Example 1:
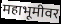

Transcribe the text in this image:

महाभूमीवर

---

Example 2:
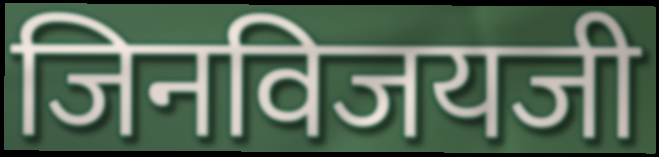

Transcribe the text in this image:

जिनविजयजी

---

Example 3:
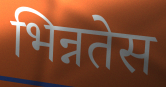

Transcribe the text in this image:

भिन्नतेस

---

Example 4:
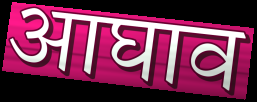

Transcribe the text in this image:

आघाव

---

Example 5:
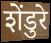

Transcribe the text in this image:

शेंडुरे